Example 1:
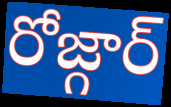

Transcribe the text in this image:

రోజ్గార్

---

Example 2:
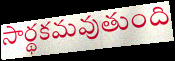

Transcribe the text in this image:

సార్థకమవుతుంది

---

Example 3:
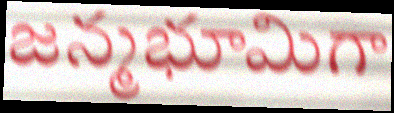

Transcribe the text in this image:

జన్మభూమిగా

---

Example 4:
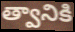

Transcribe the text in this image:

త్వానికి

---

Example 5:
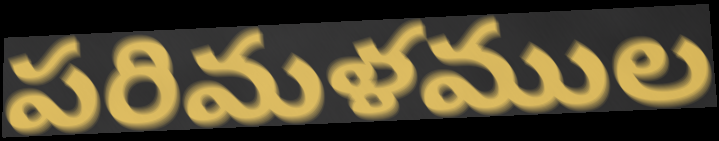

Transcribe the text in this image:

పరిమళముల